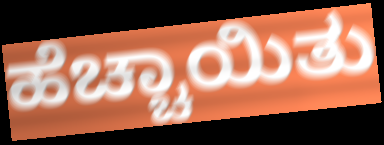
ಹೆಚ್ಚಾಯಿತು